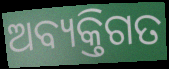
ଅବ୍ୟକ୍ତିଗତ